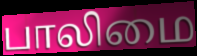
பாலிமை